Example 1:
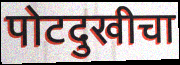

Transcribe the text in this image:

पोटदुखीचा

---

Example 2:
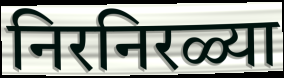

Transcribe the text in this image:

निरनिरळ्या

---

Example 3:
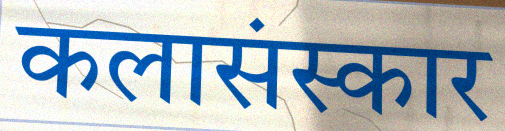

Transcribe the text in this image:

कलासंस्कार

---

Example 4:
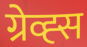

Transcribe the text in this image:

ग्रेव्ह्स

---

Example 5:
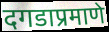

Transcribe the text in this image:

दगडाप्रमाणे